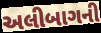
અલીબાગની